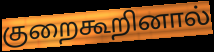
குறைகூறினால்